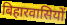
बिहारवासियों